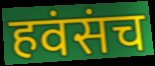
हवंसंच